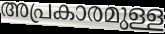
അപ്രകാരമുള്ള